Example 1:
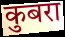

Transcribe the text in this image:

कुबरा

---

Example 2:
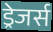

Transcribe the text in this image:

ड्रेजर्स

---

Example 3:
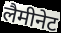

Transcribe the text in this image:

लैमीनेट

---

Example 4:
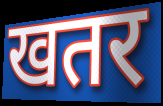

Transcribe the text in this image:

खतर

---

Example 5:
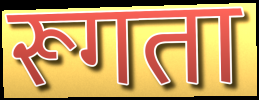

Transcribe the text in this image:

रूगता